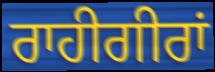
ਰਾਹੀਗੀਰਾਂ